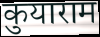
कुयाराम